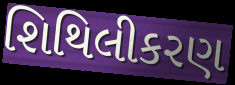
શિથિલીકરણ